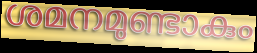
ശമനമുണ്ടാകും